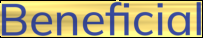
Beneficial